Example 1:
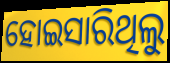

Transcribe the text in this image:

ହୋଇସାରିଥିଲୁ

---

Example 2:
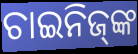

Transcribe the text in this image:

ଚାଇନିଜ୍‌ଙ୍କ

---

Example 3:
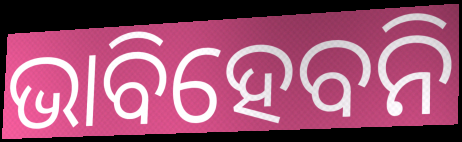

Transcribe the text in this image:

ଭାବିହେବନି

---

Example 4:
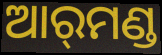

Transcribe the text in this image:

ଆର୍‌ମଣ୍ଡ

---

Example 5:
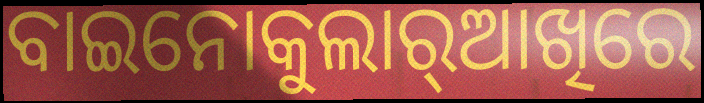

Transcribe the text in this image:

ବାଇନୋକୁଲାର୍‌ଆଖିରେ